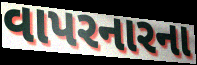
વાપરનારના